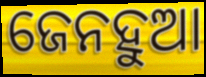
ଜେନହୁଆ